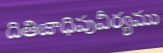
దితిజాధిపువీర్యము